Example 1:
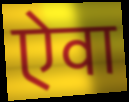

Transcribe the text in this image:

ऐवा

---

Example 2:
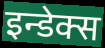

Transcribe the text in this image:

इन्डेक्स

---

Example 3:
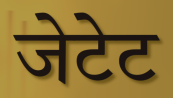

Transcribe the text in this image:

जेटेट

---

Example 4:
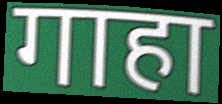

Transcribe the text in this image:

गाहा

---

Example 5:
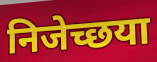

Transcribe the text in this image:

निजेच्छया